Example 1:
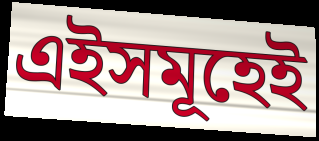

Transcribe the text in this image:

এইসমূহেই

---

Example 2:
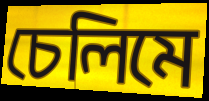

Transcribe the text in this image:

চেলিমে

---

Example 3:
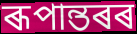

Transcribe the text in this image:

ৰূপান্তৰৰ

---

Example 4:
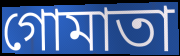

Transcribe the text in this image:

গোমাতা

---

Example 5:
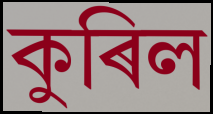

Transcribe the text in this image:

কুৰিল